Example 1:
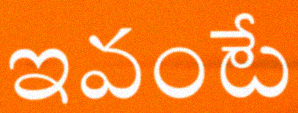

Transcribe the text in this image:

ఇవంటే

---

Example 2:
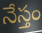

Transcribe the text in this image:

నేస్తం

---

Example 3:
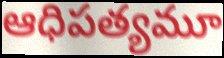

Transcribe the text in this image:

ఆధిపత్యమూ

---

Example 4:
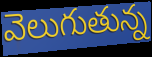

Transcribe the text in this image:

వెలుగుతున్న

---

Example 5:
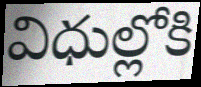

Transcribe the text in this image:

విధుల్లోకి